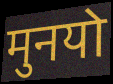
मुनयो